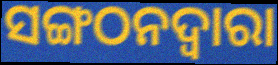
ସଙ୍ଗଠନଦ୍ୱାରା